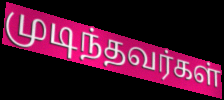
முடிந்தவர்கள்